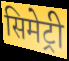
सिमेट्री